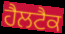
ਹੈਲਟੈਕ